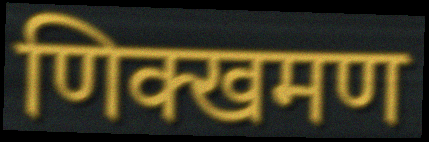
णिक्खमण